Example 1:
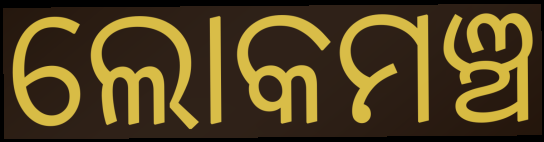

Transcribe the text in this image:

ଲୋକମଞ୍ଚ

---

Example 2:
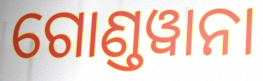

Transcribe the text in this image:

ଗୋଣ୍ଡୱାନା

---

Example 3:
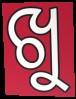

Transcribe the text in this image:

ଖୁ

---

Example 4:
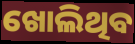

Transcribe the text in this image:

ଖୋଲିଥିବ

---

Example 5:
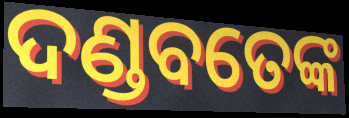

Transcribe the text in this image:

ଦଣ୍ଡବତେଙ୍କ